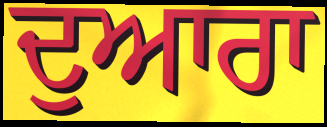
ਦੁਆਰਾ